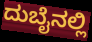
ದುಬೈನಲ್ಲಿ